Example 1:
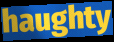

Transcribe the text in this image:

haughty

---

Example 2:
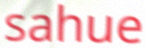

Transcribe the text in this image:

sahue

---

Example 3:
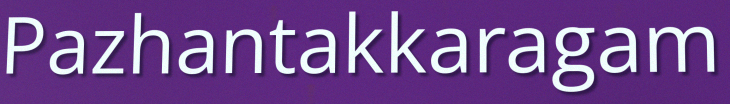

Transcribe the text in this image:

Pazhantakkaragam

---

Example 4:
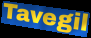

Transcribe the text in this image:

Tavegil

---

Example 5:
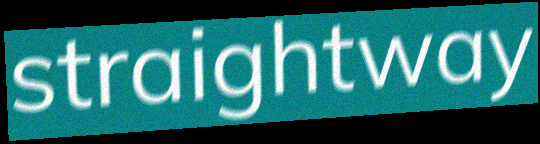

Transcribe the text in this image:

straightway